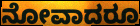
ನೋವಾದರೂ